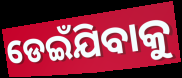
ଡେଇଁଯିବାକୁ